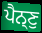
ਪੈਨ੍ਣੁ